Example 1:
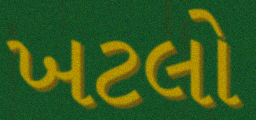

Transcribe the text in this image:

ખટલો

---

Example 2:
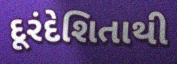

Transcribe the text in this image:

દૂરંદેશિતાથી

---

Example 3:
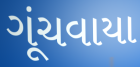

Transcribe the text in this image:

ગૂંચવાયા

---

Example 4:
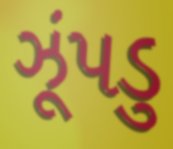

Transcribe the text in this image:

ઝૂંપડુ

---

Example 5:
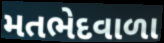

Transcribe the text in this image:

મતભેદવાળા